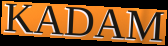
KADAM